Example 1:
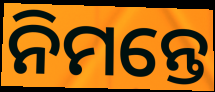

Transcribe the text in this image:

ନିମନ୍ତେ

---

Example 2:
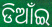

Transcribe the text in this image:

ଡିଆଁଇ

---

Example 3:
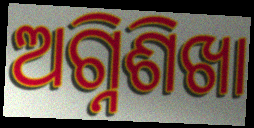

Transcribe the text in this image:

ଅଗ୍ନିଶିଖା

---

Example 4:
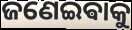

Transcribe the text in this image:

ଜଣେଇଵାକୁ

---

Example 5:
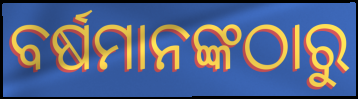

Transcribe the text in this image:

ବର୍ଷମାନଙ୍କଠାରୁ